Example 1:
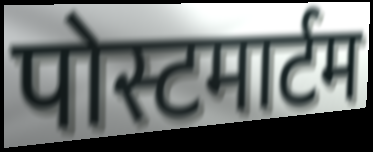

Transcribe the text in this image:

पोस्टमार्टम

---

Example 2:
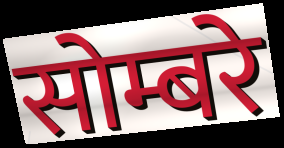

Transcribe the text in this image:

सोम्बरे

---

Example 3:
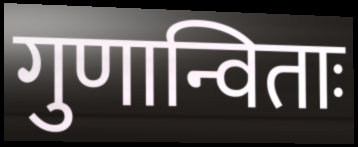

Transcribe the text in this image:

गुणान्विताः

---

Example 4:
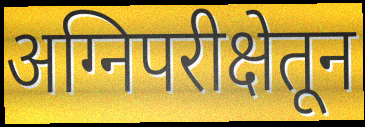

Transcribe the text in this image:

अग्निपरीक्षेतून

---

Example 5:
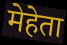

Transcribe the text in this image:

मेहेता